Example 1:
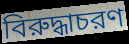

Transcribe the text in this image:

বিরুদ্ধাচরণ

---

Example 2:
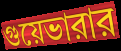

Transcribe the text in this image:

গুয়েভারার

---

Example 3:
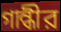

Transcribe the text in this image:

গান্ধীর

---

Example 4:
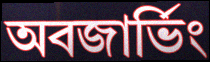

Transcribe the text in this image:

অবজার্ভিং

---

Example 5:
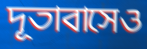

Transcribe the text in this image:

দূতাবাসেও